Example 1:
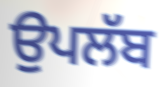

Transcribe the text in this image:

ਉਪਲੱਬ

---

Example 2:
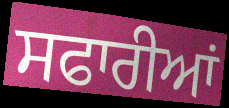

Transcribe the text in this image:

ਸਫਾਰੀਆਂ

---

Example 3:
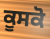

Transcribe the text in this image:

ਕੂਸਕੋ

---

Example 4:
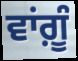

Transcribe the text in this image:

ਵਾਂਗ਼ੂੰ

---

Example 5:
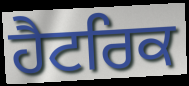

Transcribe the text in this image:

ਹੈਟਰਿਕ